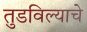
तुडविल्याचे